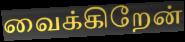
வைக்கிறேன்